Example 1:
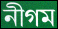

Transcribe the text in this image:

নীগম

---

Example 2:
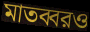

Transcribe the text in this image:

মাতব্বরও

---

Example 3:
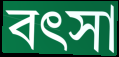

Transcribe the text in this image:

বৎসা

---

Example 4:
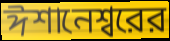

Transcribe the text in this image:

ঈশানেশ্বরের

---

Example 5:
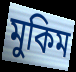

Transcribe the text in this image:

মুকিম